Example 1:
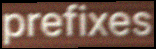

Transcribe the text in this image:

prefixes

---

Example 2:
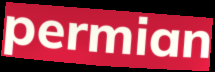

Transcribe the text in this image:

permian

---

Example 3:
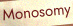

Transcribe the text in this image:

Monosomy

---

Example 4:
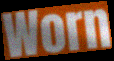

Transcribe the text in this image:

Worn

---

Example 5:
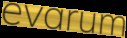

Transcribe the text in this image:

evarum